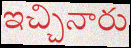
ఇచ్చినారు